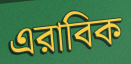
এরাবিক